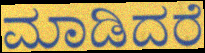
ಮಾಡಿದರೆ